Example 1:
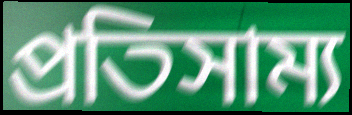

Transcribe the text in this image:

প্রতিসাম্য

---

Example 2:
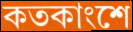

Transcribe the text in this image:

কতকাংশে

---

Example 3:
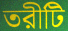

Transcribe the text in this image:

তরীটি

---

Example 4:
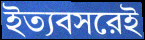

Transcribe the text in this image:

ইত্যবসরেই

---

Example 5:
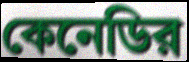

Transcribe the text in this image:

কেনেডির